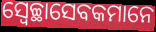
ସ୍ୱେଚ୍ଛାସେବକମାନେ